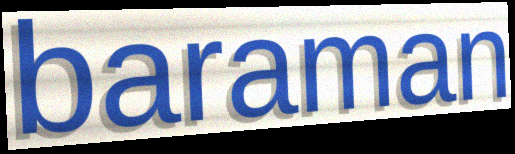
baraman